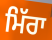
ਮਿੱਰਾ